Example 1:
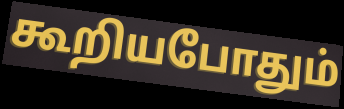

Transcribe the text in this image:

கூறியபோதும்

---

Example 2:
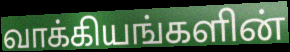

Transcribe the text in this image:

வாக்கியங்களின்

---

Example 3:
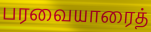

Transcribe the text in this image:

பரவையாரைத்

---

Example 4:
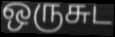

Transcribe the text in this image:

ஒருசுட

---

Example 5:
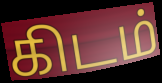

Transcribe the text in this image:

கிடம்